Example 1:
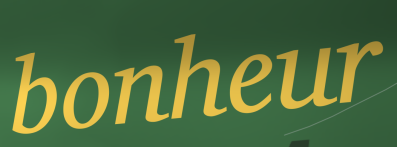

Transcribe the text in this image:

bonheur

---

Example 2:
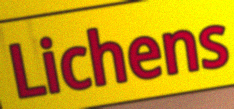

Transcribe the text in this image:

Lichens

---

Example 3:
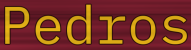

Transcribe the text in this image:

Pedros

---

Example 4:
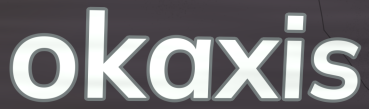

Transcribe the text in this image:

okaxis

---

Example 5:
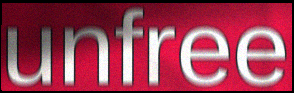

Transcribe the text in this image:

unfree